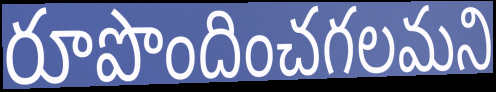
రూపొందించగలమని